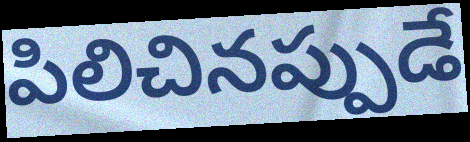
పిలిచినప్పుడే